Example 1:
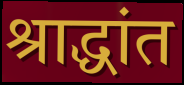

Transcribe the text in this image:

श्राद्धांत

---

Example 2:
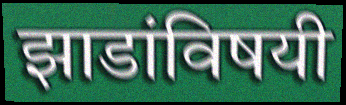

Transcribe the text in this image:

झाडांविषयी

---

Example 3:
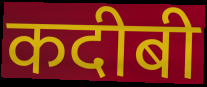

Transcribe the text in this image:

कदीबी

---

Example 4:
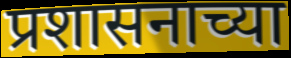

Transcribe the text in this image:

प्रशासनाच्या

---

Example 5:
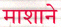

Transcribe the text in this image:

माशाने